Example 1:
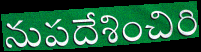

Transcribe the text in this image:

నుపదేశించిరి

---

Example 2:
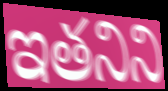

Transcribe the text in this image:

ఇతనిని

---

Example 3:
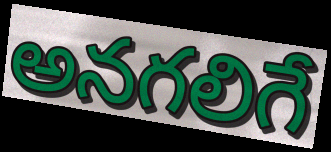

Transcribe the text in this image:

అనగలిగే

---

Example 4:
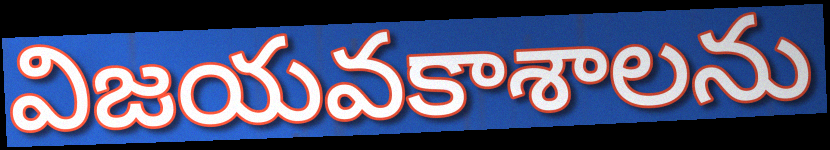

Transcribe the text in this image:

విజయవకాశాలను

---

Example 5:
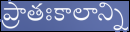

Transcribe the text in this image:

ప్రాతఃకాలాన్ని